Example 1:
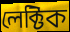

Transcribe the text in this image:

লেক্টিক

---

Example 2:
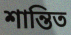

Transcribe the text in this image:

শান্তিত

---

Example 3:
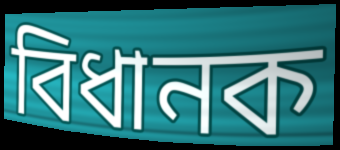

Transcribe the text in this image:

বিধানক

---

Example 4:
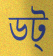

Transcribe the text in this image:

ডট্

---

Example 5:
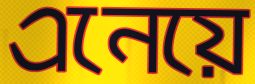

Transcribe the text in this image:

এনেয়ে